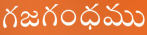
గజగంధము